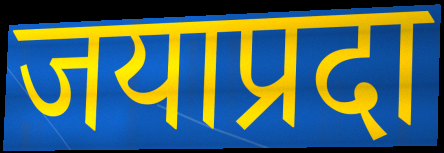
जयाप्रदा